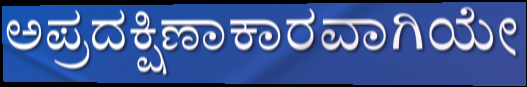
ಅಪ್ರದಕ್ಷಿಣಾಕಾರವಾಗಿಯೇ